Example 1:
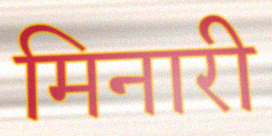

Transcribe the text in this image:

मिनारी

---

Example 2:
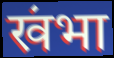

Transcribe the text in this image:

खंभा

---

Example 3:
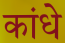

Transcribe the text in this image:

कांधे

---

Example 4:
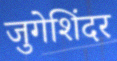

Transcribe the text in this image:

जुगेशिंदर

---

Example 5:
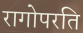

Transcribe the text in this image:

रागोपरति